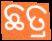
ଛତ୍ର